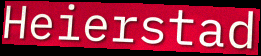
Heierstad